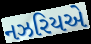
નઝરિયએ